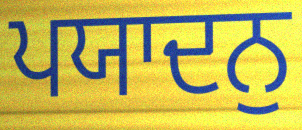
ਪਯਾਦਨੁ